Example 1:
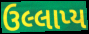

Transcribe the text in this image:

ઉલ્લાપ્ય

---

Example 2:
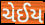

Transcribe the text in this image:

ચેઈય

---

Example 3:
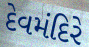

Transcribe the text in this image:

દેવમંદિરે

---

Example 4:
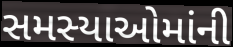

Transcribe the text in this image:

સમસ્યાઓમાંની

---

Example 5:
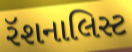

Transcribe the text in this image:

રૅશનાલિસ્ટ